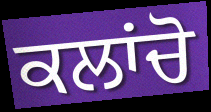
ਕਲਾਂਚੋ